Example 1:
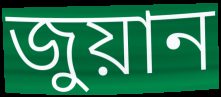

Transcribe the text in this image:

জুয়ান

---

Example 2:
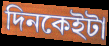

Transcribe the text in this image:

দিনকেইটা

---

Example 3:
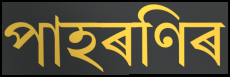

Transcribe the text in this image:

পাহৰণিৰ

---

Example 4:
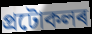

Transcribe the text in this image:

প্ৰটোকলৰ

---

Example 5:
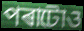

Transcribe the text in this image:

পৰাটোও